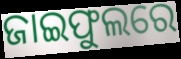
ଜାଇଫୁଲରେ